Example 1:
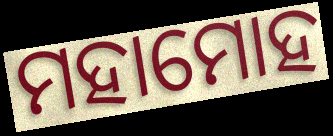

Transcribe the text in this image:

ମହାମୋହ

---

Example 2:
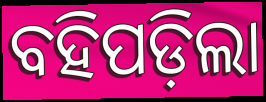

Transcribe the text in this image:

ବହିପଡ଼ିଲା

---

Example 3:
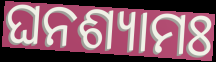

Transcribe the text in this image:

ଘନଶ୍ଯାମଃ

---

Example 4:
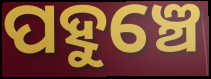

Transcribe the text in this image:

ପହୁଞ୍ଚେ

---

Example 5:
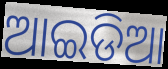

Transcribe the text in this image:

ଆଇଡିଆ